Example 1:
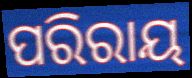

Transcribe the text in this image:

ପରିରାୟ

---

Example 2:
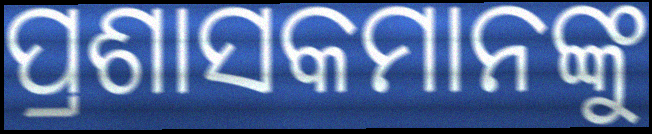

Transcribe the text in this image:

ପ୍ରଶାସକମାନଙ୍କୁ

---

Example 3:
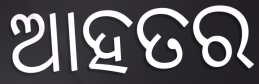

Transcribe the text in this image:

ଆହତର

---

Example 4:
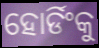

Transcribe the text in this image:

ହୋର୍ଡିଂକୁ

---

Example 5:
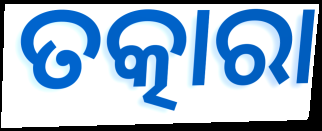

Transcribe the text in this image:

ତତ୍କାରା